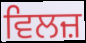
ਵਿਲਜ਼